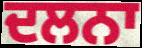
ਦਲਨਾ